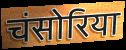
चंसोरिया